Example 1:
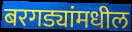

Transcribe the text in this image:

बरगड्यांमधील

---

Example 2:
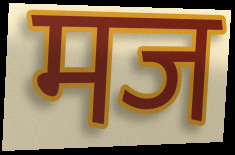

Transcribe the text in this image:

मज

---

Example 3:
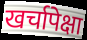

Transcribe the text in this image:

खर्चापेक्षा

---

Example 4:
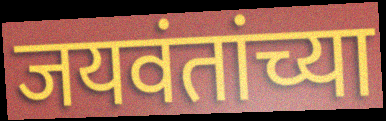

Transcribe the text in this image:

जयवंतांच्या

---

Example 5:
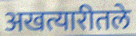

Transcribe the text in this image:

अखत्यारीतले